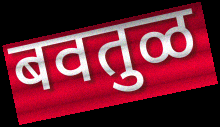
बवतुळ